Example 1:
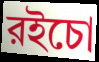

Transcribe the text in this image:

রইচো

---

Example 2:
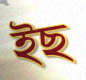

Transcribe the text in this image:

ইছ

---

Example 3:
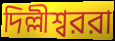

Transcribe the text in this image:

দিল্লীশ্বররা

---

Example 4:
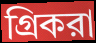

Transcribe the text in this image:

গ্রিকরা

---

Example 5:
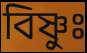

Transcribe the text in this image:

বিষ্ণুঃ